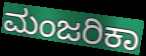
ಮಂಜರಿಕಾ